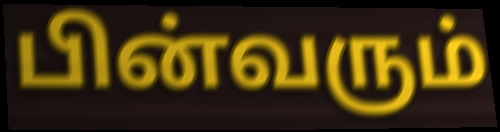
பின்வரும்